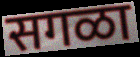
सगळा